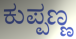
ಕುಪ್ಪಣ್ಣ